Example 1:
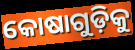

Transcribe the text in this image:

କୋଷାଗୁଡ଼ିକୁ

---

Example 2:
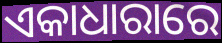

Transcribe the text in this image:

ଏକାଧାରାରେ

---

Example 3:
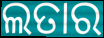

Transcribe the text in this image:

ଲତାର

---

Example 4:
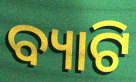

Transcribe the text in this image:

ବ୍ୟାଟି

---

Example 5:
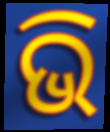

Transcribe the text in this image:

ଭି